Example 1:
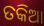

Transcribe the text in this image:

ତକିଆ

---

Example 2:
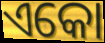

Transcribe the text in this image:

ଏକୋ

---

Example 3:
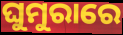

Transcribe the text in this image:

ଘୁମୁରାରେ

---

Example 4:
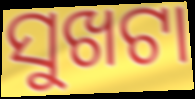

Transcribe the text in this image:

ସୁଖଟା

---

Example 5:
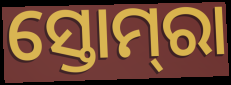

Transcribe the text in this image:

ସ୍ତୋମ୍‌ରା